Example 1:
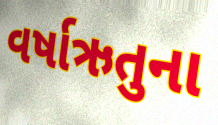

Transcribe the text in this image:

વર્ષાઋતુના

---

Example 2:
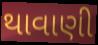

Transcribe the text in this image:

થાવાણી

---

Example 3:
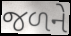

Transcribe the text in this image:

જળને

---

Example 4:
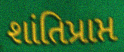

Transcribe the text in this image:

શાંતિપ્રાપ્ત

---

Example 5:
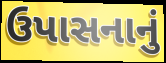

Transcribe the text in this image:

ઉપાસનાનું